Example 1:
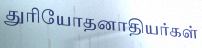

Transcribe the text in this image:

துரியோதனாதியர்கள்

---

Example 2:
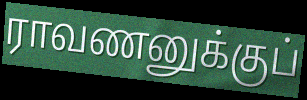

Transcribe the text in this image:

ராவணனுக்குப்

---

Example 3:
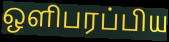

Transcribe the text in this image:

ஒளிபரப்பிய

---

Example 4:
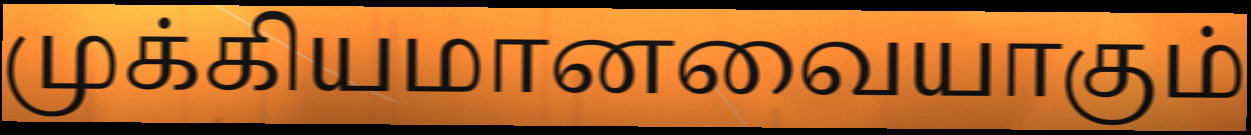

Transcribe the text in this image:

முக்கியமானவையாகும்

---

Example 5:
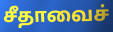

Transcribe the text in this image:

சீதாவைச்